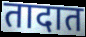
तादात